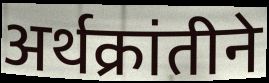
अर्थक्रांतीने